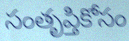
సంతృప్తికోసం